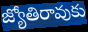
జ్యోతిరావుకు